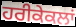
ਹਰੀਕੇਕਲਾਂ